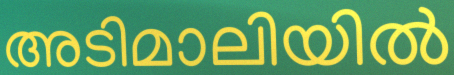
അടിമാലിയിൽ